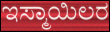
ಇಸ್ಮಾಯಿಲರ